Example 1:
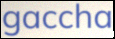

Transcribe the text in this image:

gaccha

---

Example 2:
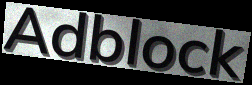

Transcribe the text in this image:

Adblock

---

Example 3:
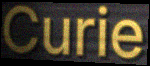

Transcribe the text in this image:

Curie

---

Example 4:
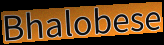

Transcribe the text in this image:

Bhalobese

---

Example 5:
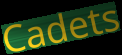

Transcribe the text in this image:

Cadets